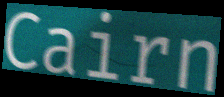
Cairn